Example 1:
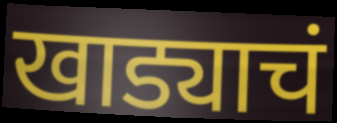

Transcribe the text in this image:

खाड्याचं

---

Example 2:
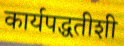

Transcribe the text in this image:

कार्यपद्धतीशी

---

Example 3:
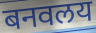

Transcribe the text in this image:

बनवलय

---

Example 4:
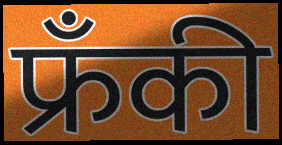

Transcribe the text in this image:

फ्रँकी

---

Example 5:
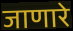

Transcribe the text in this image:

जाणारे